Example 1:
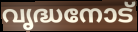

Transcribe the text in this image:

വൃദ്ധനോട്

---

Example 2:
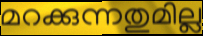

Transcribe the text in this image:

മറക്കുന്നതുമില്ല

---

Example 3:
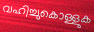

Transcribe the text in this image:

വഹിച്ചുകൊള്ളുക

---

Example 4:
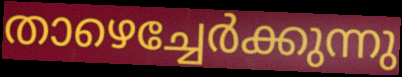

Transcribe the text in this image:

താഴെച്ചേർക്കുന്നു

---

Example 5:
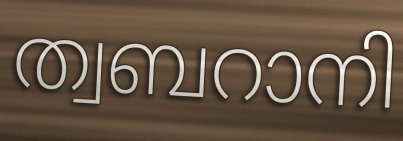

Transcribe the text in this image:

ത്വബറാനി